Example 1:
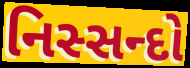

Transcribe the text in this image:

નિસ્સન્દો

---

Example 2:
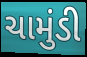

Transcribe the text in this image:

ચામુંડી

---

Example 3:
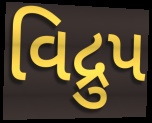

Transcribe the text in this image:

વિદ્રુપ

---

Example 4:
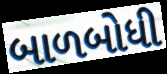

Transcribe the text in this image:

બાળબોધી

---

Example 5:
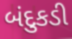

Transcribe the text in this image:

બંદુકડી